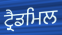
ਟ੍ਰੈਡਮਿਲ